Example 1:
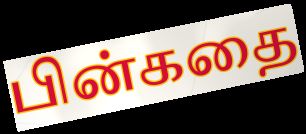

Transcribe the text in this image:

பின்கதை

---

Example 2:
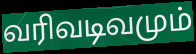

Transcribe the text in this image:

வரிவடிவமும்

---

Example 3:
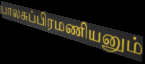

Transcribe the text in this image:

பாலசுப்பிரமணியனும்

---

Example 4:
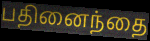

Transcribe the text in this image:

பதினைந்தை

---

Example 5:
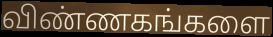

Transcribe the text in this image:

விண்ணகங்களை